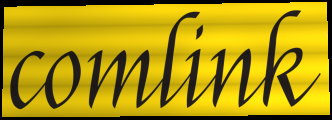
comlink